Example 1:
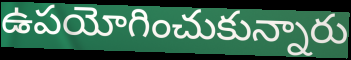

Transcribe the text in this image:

ఉపయోగించుకున్నారు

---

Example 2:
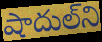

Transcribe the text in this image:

షాదుల్‌ని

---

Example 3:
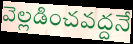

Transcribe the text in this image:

వెల్లడించవద్దనే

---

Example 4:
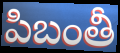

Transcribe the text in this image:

పిబంతీ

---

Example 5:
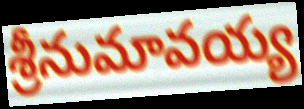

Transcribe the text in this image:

శ్రీనుమావయ్య